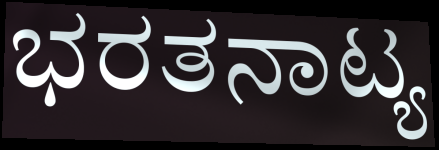
ಭರತನಾಟ್ಯ